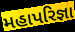
મહાપરિજ્ઞા